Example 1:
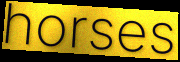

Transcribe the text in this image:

horses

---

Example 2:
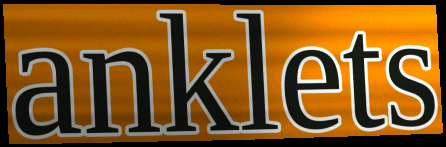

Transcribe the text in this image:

anklets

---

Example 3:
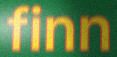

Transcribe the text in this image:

finn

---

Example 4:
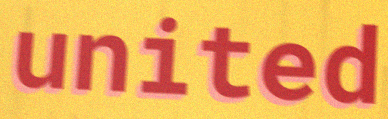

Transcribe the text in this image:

united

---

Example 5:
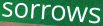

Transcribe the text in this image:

sorrows